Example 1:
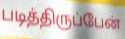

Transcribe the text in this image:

படித்திருப்பேன்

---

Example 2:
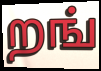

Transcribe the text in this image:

றங்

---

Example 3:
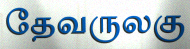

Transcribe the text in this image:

தேவருலகு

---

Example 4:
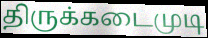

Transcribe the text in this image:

திருக்கடைமுடி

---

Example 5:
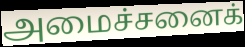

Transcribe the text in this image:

அமைச்சனைக்